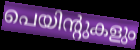
പെയിന്റുകളും